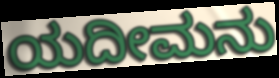
ಯದೀಮನು